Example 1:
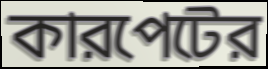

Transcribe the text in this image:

কারপেটের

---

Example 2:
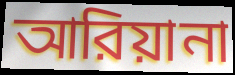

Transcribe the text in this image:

আরিয়ানা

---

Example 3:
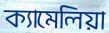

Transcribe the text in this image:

ক্যামেলিয়া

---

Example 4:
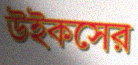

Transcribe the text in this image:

উইকসের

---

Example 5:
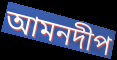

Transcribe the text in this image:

আমনদীপ